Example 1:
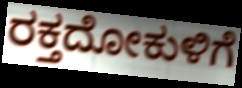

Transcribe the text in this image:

ರಕ್ತದೋಕುಳಿಗೆ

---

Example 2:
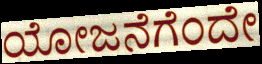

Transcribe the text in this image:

ಯೋಜನೆಗೆಂದೇ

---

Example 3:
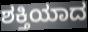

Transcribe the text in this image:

ಶಕ್ತಿಯಾದ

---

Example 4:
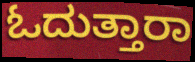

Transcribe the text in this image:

ಓದುತ್ತಾರಾ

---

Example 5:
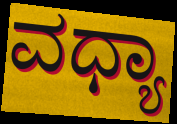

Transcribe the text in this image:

ವಧ್ಯಾ